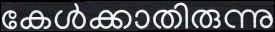
കേൾക്കാതിരുന്നു